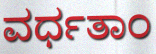
ವರ್ಧತಾಂ